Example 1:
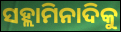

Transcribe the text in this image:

ସହ୍ଲାମିନାଦିକୁ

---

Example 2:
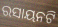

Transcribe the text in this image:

ରସାୟନଟି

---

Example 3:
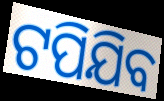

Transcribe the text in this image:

ଟପିଯିବ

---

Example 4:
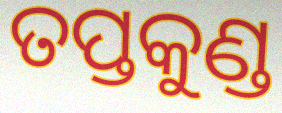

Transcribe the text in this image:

ତପ୍ତକୁଣ୍ଡ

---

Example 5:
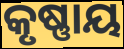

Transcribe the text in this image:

କୃଷ୍ଣାୟ